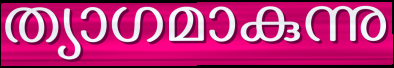
ത്യാഗമാകുന്നു